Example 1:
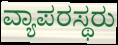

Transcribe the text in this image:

ವ್ಯಾಪರಸ್ಥರು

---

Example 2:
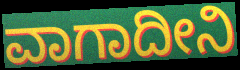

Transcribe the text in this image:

ವಾಗಾದೀನಿ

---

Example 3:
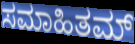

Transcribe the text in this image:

ಸಮಾಹಿತಮ್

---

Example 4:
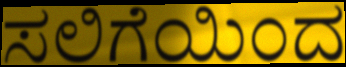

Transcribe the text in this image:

ಸಲಿಗೆಯಿಂದ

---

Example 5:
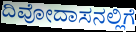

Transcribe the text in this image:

ದಿವೋದಾಸನಲ್ಲಿಗೆ